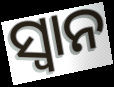
ସ୍ୱାନ